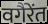
वगैरेंत